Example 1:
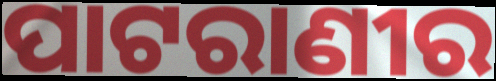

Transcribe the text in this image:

ପାଟରାଣୀର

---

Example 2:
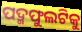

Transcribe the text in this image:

ପଦ୍ମଫୁଲଟିକୁ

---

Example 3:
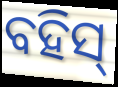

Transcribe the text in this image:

ବହିସ୍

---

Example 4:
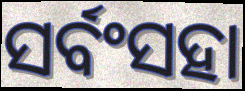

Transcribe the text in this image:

ସର୍ବଂସହା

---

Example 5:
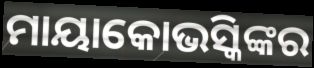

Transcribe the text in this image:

ମାୟାକୋଭସ୍କିଙ୍କର